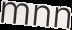
mnn